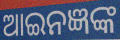
ଆଇନଜ୍ଞଙ୍କ